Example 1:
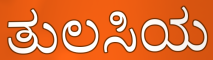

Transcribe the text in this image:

ತುಲಸಿಯ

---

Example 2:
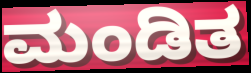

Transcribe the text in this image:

ಮಂಡಿತ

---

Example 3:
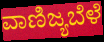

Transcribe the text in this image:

ವಾಣಿಜ್ಯಬೆಳೆ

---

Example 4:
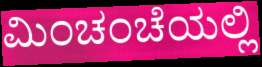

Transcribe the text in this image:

ಮಿಂಚಂಚೆಯಲ್ಲಿ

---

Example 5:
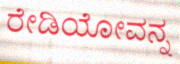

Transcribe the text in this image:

ರೇಡಿಯೋವನ್ನ